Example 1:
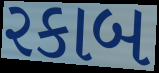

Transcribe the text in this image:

રકાબ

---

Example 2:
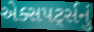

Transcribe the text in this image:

એક્સપર્ટ્સનું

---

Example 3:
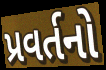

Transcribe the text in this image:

પ્રવર્તનો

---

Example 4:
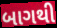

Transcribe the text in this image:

બાગથી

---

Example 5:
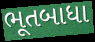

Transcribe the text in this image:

ભૂતબાધા